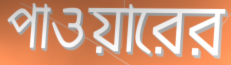
পাওয়ারের